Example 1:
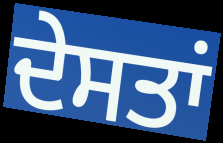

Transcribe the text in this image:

ਦੇਸਤਾਂ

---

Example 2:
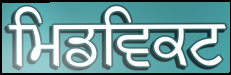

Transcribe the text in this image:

ਮਿਡਵਿਕਟ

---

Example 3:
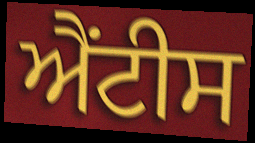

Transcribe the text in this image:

ਐਂਟੀਸ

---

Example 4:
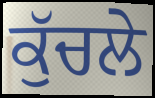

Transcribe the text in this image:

ਕੁੱਚਲੇ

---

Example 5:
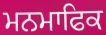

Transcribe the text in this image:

ਮਨਮਾਫਿਕ